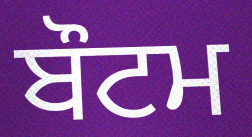
ਬੌਟਮ